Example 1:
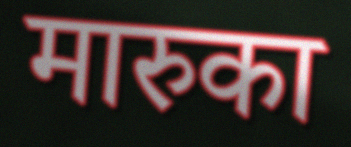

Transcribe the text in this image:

मारुका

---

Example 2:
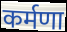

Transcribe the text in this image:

कर्मणा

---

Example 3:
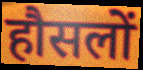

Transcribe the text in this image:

हौसलों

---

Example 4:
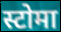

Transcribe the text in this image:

स्टोमा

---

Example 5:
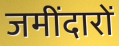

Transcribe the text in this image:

जमींदारों